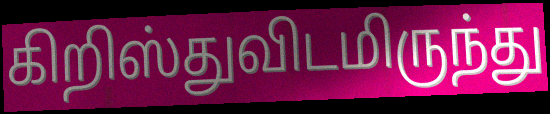
கிறிஸ்துவிடமிருந்து